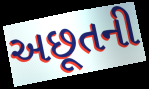
અછૂતની